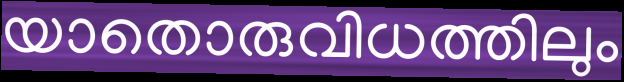
യാതൊരുവിധത്തിലും